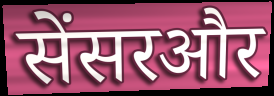
सेंसरऔर